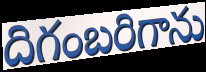
దిగంబరిగాను